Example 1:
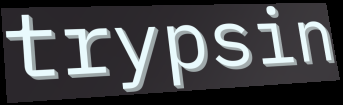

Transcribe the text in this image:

trypsin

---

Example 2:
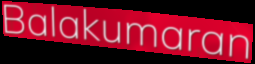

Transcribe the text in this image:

Balakumaran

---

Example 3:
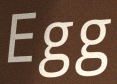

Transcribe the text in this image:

Egg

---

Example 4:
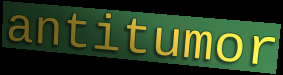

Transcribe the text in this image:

antitumor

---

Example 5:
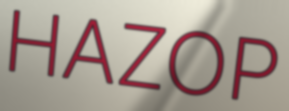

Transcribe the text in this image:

HAZOP